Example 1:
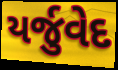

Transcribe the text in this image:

યર્જુવેદ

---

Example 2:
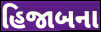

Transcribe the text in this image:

હિજાબના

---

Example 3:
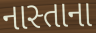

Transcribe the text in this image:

નાસ્તાના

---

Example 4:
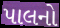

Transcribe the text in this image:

પાલનો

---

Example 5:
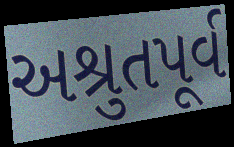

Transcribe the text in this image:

અશ્રુતપૂર્વ